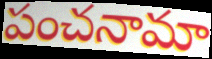
పంచనామా